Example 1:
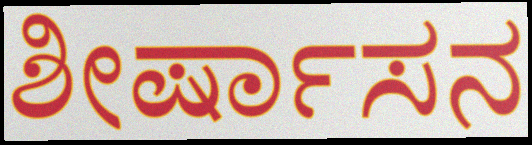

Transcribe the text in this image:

ಶೀರ್ಷಾಸನ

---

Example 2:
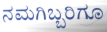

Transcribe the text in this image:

ನಮಗಿಬ್ಬರಿಗೂ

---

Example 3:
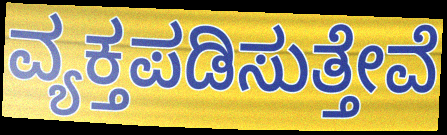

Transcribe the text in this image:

ವ್ಯಕ್ತಪಡಿಸುತ್ತೇವೆ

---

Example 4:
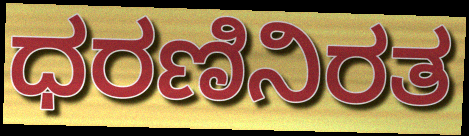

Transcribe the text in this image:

ಧರಣಿನಿರತ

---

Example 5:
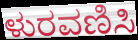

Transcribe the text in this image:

ಳುರವಣಿಸಿ